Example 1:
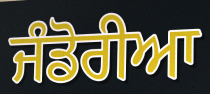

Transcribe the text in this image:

ਜੰਡੋਰੀਆ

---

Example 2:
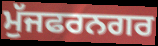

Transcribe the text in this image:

ਮੁੱਜਫਰਨਗਰ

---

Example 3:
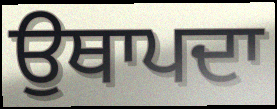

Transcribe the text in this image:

ਉਥਾਪਦਾ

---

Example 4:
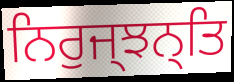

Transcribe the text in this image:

ਨਿਰੁਜ੍ਝਨ੍ਤਿ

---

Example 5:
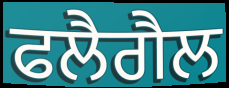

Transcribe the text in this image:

ਫਲੈਗੈਲ